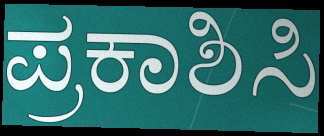
ಪ್ರಕಾಶಿಸಿ